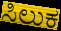
ಸಿಲುಕ